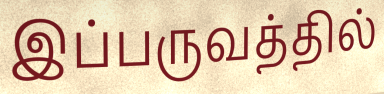
இப்பருவத்தில்